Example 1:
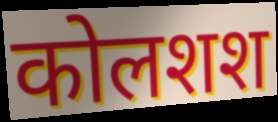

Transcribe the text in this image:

कोलशश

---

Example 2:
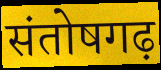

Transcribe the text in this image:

संतोषगढ़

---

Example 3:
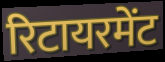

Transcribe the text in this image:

रिटायरमेंट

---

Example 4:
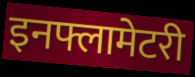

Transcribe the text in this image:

इनफ्लामेटरी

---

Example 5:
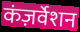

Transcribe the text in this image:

कंज़र्वेशन